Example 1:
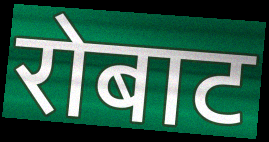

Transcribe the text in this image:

रोबाट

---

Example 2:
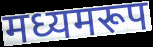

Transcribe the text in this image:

मध्यमरूप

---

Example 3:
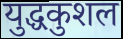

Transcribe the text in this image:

युद्धकुशल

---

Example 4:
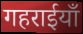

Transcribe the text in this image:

गहराईयाँ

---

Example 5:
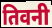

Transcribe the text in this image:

तिवनी